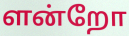
ளன்றோ